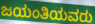
ಜಯಂತಿಯವರು